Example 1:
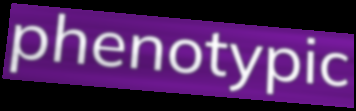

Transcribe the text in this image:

phenotypic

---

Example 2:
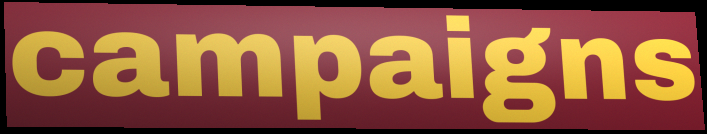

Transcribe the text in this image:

campaigns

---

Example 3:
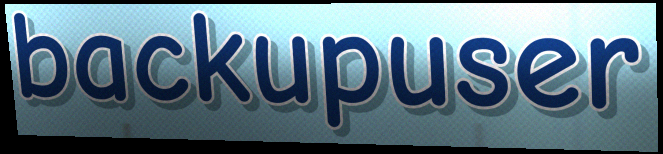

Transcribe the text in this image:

backupuser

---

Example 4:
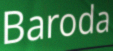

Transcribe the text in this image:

Baroda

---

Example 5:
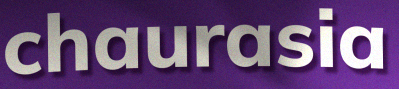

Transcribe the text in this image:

chaurasia